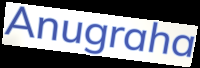
Anugraha